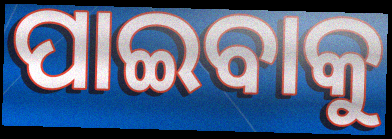
ପାଇବାକୁ